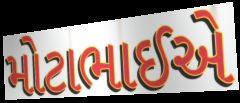
મોટાભાઈએ